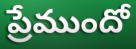
ప్రేముందో